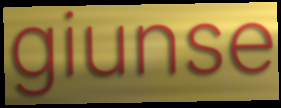
giunse